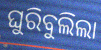
ଘୁରିବୁଲିଲା